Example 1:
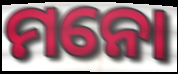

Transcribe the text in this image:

ମନୋ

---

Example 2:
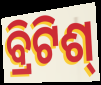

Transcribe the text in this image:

ବ୍ରିଟିଶ୍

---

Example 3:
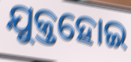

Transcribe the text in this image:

ଯୁକ୍ତହୋଇ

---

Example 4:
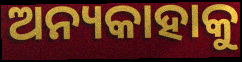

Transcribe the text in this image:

ଅନ୍ୟକାହାକୁ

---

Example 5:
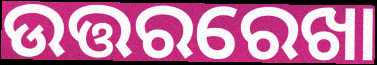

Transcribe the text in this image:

ଉତ୍ତରରେଖା